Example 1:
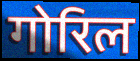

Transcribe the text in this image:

गोरिल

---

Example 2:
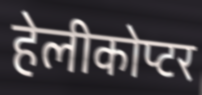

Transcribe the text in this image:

हेलीकोप्टर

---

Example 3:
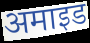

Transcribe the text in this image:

अमाइड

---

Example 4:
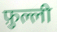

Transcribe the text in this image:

फ़ुल्ली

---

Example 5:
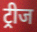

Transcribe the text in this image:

ट्रीज